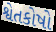
શ્વેતકોષો